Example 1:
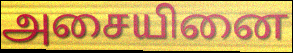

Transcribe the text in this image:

அசையினை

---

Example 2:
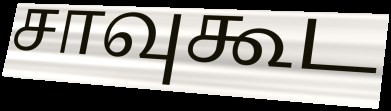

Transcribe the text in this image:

சாவுகூட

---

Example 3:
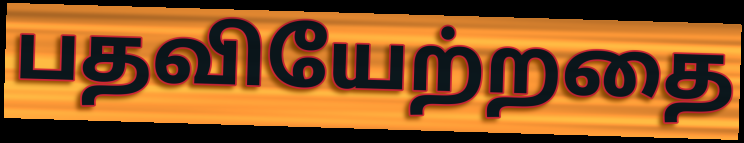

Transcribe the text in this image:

பதவியேற்றதை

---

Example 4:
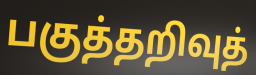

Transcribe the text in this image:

பகுத்தறிவுத்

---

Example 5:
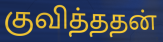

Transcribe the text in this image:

குவித்ததன்